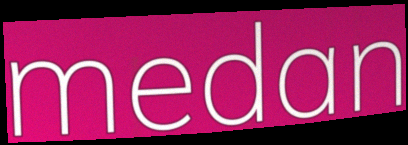
medan